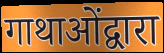
गाथाओंद्वारा